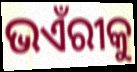
ଭଏଁରୀକୁ